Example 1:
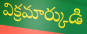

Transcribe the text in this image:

విక్రమార్కుడి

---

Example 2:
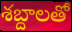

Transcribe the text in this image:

శబ్దాలతో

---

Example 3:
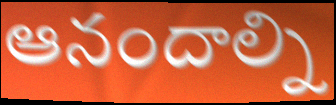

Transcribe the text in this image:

ఆనందాల్ని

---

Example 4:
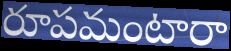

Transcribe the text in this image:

రూపమంటారా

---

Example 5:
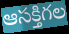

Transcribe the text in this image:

ఆసక్తిగల